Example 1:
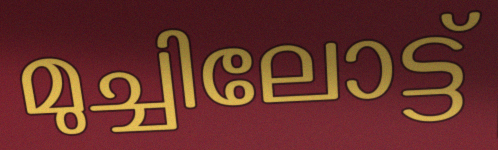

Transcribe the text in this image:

മുച്ചിലോട്ട്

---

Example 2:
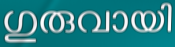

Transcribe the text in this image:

ഗുരുവായി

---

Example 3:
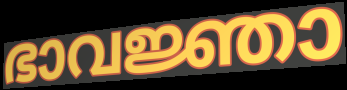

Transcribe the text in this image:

ഭാവജ്ഞാ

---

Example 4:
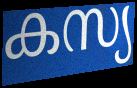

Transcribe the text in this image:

കസ്യ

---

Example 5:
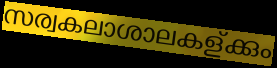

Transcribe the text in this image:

സര്വകലാശാലകള്ക്കും